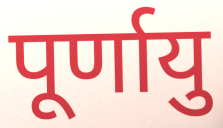
पूर्णायु